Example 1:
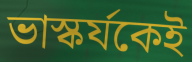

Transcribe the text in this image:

ভাস্কর্যকেই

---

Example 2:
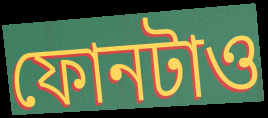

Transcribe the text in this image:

ফোনটাও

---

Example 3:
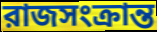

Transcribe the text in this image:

রাজসংক্রান্ত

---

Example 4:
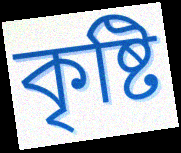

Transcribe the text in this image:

কৃষ্টি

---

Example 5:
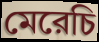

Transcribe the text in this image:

মেরেচি